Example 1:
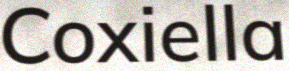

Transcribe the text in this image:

Coxiella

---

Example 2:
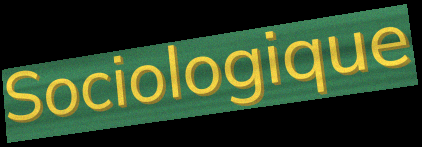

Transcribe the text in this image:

Sociologique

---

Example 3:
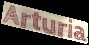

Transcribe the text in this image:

Arturia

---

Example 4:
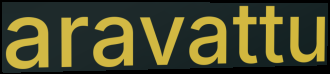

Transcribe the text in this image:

aravattu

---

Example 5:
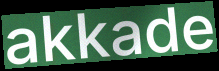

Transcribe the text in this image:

akkade